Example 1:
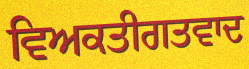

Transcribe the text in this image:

ਵਿਅਕਤੀਗਤਵਾਦ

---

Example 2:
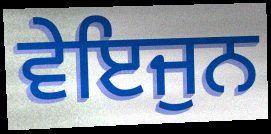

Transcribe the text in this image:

ਵੇਇਜੁਨ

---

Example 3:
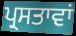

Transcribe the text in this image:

ਪ੍ਰਸਤਾਵਾਂ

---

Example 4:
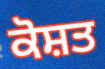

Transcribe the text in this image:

ਕੋਸ਼ਤ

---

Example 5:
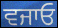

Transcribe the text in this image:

ਵਜਾਓ